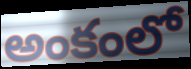
అంకంలో